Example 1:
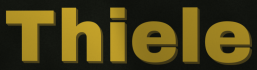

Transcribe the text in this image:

Thiele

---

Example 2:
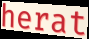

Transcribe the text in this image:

herat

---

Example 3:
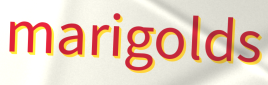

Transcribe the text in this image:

marigolds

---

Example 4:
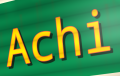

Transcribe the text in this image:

Achi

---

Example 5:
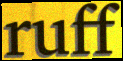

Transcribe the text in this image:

ruff